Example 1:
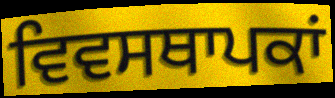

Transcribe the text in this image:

ਵਿਵਸਥਾਪਕਾਂ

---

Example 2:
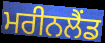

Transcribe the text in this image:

ਮਰੀਨਲੈਂਡ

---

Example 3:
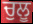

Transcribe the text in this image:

ਚੁਲੂ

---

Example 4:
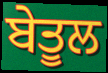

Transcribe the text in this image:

ਬੇਤੂਲ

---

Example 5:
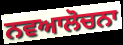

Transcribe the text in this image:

ਨਵਆਲੋਚਨਾ